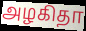
அழகிதா